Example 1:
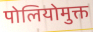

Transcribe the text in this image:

पोलियोमुक्त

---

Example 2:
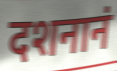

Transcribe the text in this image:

दशनानं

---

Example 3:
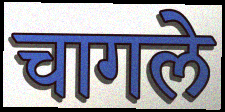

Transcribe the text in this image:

चागले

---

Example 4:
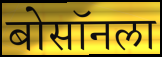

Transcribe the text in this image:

बोसॉनला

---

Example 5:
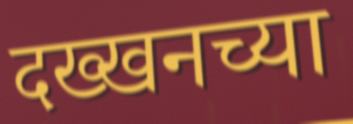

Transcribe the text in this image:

दख्खनच्या